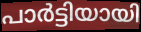
പാർട്ടിയായി